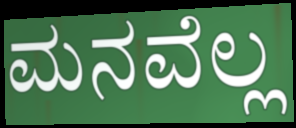
ಮನವೆಲ್ಲ